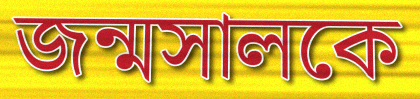
জন্মসালকে